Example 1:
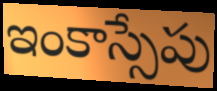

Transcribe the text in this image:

ఇంకాస్సేపు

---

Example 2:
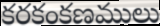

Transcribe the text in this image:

కరకంకణములు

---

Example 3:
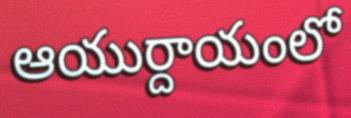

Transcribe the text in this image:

ఆయుర్దాయంలో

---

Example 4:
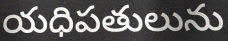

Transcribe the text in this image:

యధిపతులును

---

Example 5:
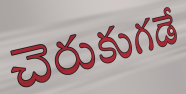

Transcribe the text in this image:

చెరుకుగడే